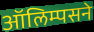
ऑलिम्पसने